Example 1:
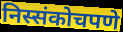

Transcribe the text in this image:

निस्संकोचपणे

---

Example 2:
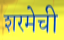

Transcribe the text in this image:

शरमेची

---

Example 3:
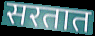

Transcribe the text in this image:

सरतात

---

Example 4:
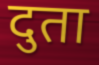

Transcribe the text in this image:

दुता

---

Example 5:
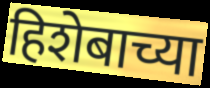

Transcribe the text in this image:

हिशेबाच्या